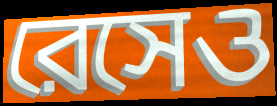
রেসেও